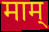
माम्